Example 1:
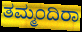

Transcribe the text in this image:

ತಮ್ಮಂದಿರಾ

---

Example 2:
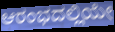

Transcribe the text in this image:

ಆರಂಭದಲ್ಲಿಯೇ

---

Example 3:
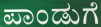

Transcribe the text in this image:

ಪಾಂಡುಗೆ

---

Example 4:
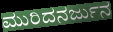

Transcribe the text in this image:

ಮುರಿದನರ್ಜುನ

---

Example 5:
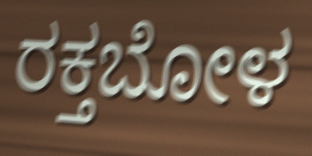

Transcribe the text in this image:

ರಕ್ತಬೋಳ